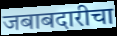
जबाबदारीचा